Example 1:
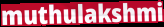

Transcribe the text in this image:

muthulakshmi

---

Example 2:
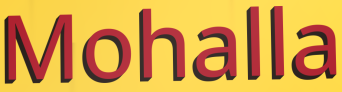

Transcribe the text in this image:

Mohalla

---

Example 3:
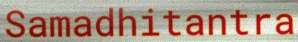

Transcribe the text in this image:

Samadhitantra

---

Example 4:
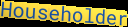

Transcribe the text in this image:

Householder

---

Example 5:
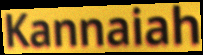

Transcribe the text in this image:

Kannaiah